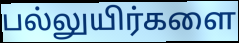
பல்லுயிர்களை